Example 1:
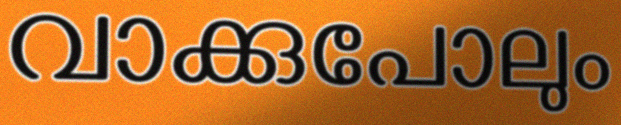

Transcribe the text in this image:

വാക്കുപോലും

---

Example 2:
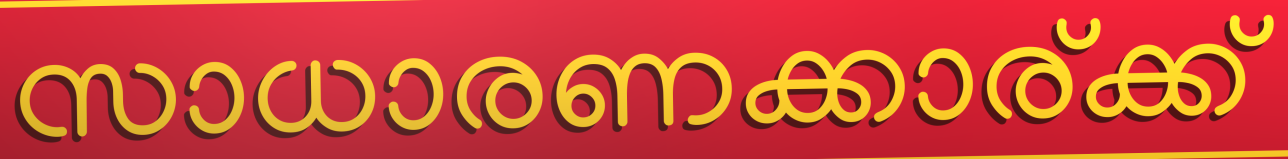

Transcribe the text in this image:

സാധാരണക്കാര്ക്ക്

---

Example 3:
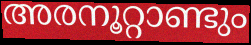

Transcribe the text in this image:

അരനൂറ്റാണ്ടും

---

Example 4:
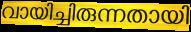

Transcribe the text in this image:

വായിച്ചിരുന്നതായി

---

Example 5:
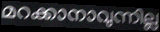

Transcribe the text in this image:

മറക്കാനാവുന്നില്ല